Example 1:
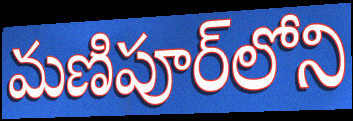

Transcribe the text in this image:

మణిపూర్‌లోని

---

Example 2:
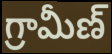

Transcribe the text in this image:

గ్రామీణ్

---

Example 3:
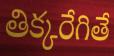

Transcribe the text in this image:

తిక్కరేగితే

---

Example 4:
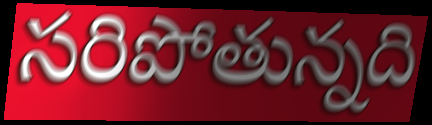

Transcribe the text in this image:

సరిపోతున్నది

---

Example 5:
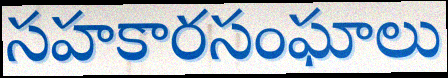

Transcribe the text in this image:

సహకారసంఘాలు